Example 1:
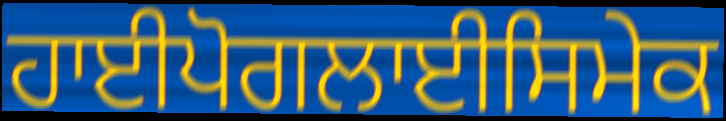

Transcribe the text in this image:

ਹਾਈਪੋਗਲਾਈਸਿਮੇਕ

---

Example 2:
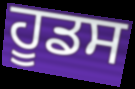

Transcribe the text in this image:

ਹੂਡਸ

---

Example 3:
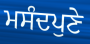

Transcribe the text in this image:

ਮਸੰਦਪੁਣੇ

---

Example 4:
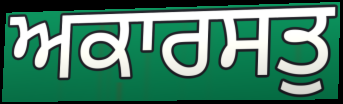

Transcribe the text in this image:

ਅਕਾਰਸਤੁ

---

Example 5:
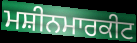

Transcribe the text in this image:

ਮਸ਼ੀਨਮਾਰਕੀਟ